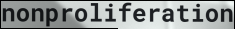
nonproliferation